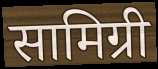
सामिग्री